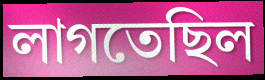
লাগতেছিল